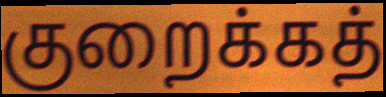
குறைக்கத்